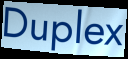
Duplex